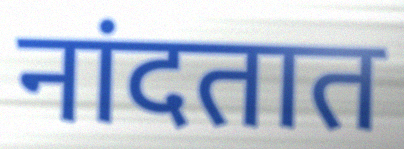
नांदतात